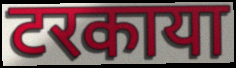
टरकाया